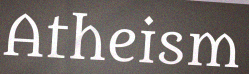
Atheism